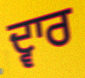
ਦ੍ਵਾਰ